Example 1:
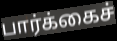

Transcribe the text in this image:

பார்க்கைச்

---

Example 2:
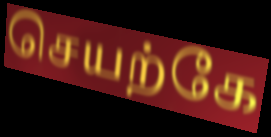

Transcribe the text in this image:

செயற்கே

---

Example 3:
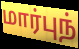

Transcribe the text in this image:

மார்புந்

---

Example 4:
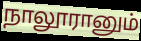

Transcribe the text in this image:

நாலூரானும்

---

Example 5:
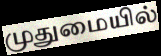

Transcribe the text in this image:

முதுமையில்